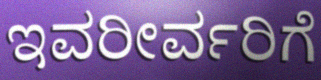
ಇವರೀರ್ವರಿಗೆ